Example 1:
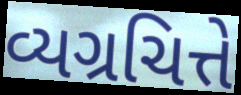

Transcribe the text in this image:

વ્યગ્રચિત્તે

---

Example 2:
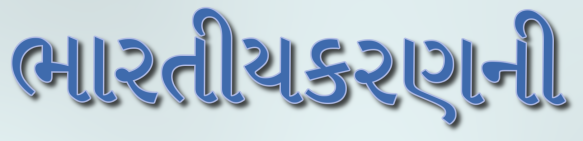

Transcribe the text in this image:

ભારતીયકરણની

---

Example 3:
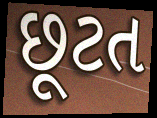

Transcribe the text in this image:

છૂટત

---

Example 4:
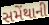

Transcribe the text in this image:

સમેંથાની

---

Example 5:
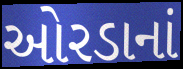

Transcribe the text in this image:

ઓરડાનાં